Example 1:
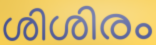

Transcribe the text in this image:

ശിശിരം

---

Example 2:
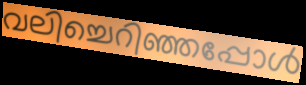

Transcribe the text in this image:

വലിച്ചെറിഞ്ഞപ്പോൾ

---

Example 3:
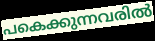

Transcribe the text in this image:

പകെക്കുന്നവരിൽ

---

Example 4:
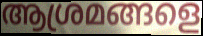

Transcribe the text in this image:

ആശ്രമങ്ങളെ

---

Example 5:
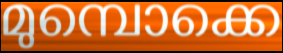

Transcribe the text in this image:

മുമ്പൊക്കെ